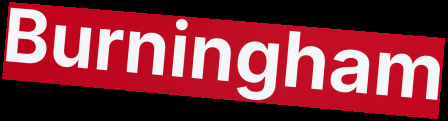
Burningham